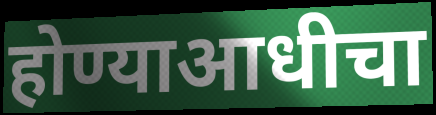
होण्याआधीचा